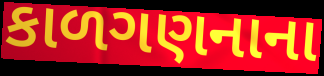
કાળગણનાના